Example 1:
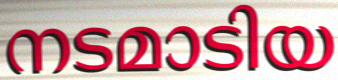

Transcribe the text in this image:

നടമാടിയ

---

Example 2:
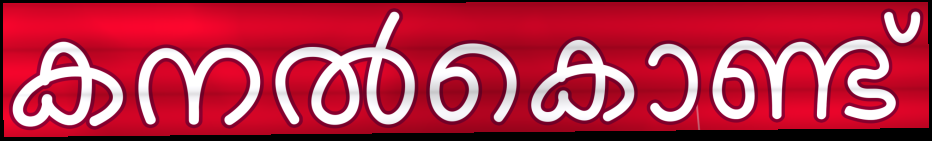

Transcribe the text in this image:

കനൽകൊണ്ട്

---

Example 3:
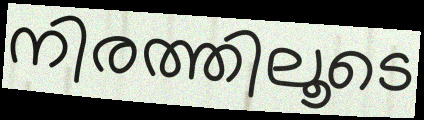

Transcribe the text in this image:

നിരത്തിലൂടെ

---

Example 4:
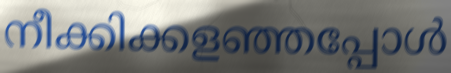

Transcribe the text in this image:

നീക്കിക്കളഞ്ഞപ്പോൾ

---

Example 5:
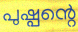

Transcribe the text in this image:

പുഷ്പന്റെ